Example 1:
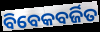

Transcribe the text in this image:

ବିବେକବର୍ଜିତ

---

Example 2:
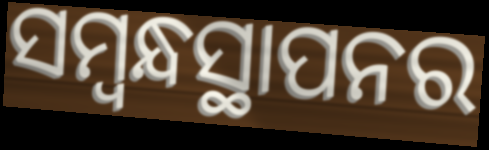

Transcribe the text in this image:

ସମ୍ବନ୍ଧସ୍ଥାପନର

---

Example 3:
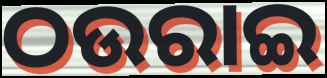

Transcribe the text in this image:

ଠଉରାଇ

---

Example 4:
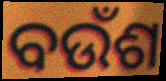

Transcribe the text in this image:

ବଉଁଶ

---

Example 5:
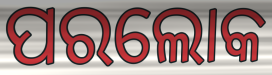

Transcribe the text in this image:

ପରଲୋକ